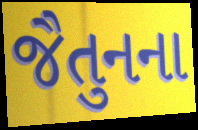
જૈતુનના